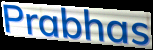
Prabhas